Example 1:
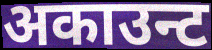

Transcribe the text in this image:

अकाउन्ट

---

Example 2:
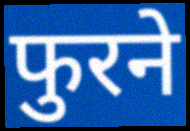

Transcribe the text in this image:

फुरने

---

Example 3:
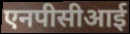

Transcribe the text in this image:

एनपीसीआई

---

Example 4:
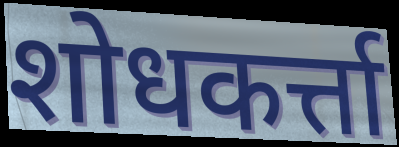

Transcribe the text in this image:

शोधकर्त्ता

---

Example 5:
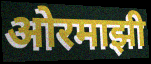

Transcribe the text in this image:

ओरमाझी